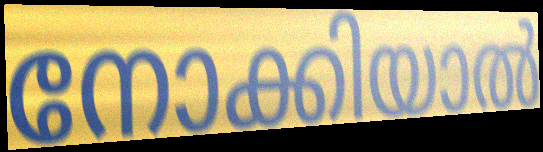
നോക്കിയാൽ